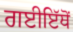
ਗਈਇੱਥੋਂ